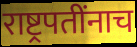
राष्ट्रपतींनाच